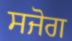
ਸਜੋਗ